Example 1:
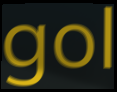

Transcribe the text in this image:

gol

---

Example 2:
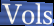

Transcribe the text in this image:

Vols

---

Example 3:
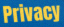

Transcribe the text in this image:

Privacy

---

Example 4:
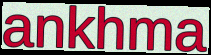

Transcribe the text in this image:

ankhma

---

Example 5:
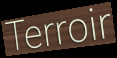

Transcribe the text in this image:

Terroir